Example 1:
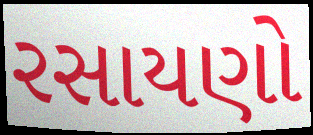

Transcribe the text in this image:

રસાયણો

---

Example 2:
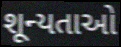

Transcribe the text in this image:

શૂન્યતાઓ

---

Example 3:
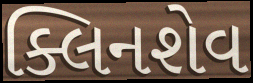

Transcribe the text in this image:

ક્લિનશેવ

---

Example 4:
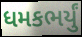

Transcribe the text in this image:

ધમકભર્યું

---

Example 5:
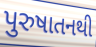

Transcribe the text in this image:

પુરુષાતનથી